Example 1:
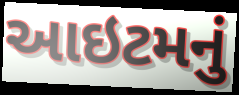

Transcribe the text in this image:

આઇટમનું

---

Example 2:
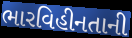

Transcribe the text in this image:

ભારવિહીનતાની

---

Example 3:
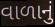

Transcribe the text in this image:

વાળાનું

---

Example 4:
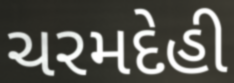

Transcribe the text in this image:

ચરમદેહી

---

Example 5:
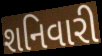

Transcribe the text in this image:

શનિવારી